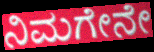
ನಿಮಗೇನೇ